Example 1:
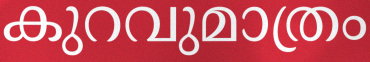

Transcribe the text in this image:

കുറവുമാത്രം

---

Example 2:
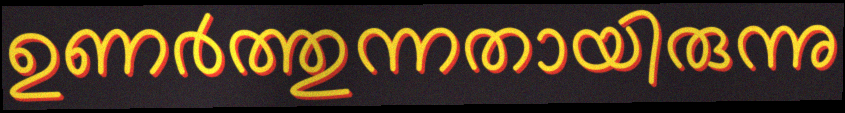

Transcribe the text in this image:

ഉണർത്തുന്നതായിരുന്നു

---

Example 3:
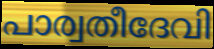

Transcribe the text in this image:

പാര്വതീദേവി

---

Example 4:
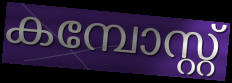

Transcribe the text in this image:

കമ്പോസ്റ്റ്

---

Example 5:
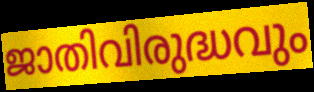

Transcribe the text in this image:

ജാതിവിരുദ്ധവും